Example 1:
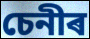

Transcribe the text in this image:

চেনীৰ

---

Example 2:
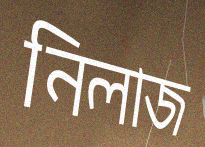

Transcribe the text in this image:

নিলাজ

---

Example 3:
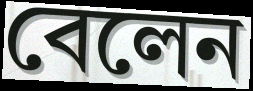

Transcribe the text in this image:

বেলেন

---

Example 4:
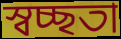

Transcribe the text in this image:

স্বচ্ছতা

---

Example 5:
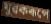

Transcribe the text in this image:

যুৱকৰূপে